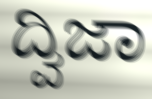
ದ್ವಿಜಾ